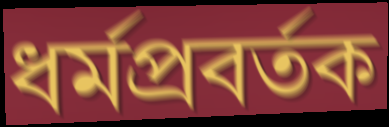
ধর্মপ্রবর্তক